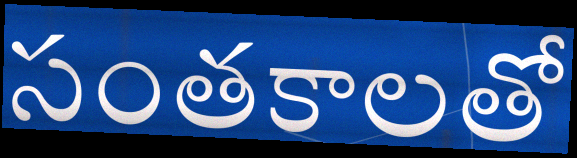
సంతకాలతో